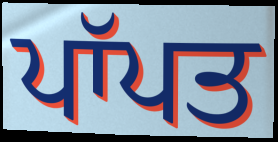
ਪਾੱਪਤ